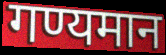
गण्यमान